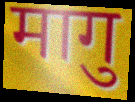
मागु